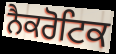
ਨੈਕਰੋਟਿਕ